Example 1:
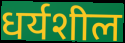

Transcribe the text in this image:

धर्यशील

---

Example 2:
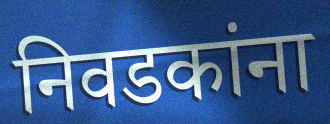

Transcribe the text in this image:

निवडकांना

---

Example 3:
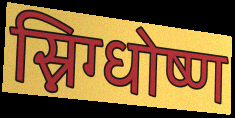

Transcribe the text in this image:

स्निग्धोष्ण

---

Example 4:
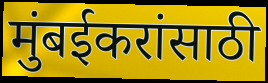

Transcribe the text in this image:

मुंबईकरांसाठी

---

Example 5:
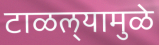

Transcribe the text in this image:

टाळल्यामुळे